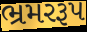
ભ્રમરરૂપ